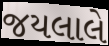
જયલાલે